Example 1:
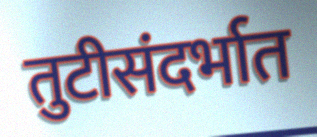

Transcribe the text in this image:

तुटीसंदर्भात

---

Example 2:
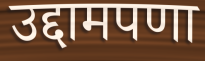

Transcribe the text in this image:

उद्दामपणा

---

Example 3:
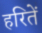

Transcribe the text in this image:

हरितें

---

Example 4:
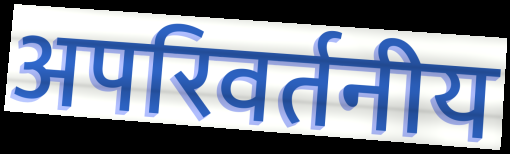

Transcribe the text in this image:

अपरिवर्तनीय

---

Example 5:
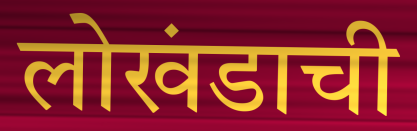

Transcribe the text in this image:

लोखंडाची